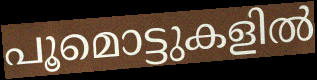
പൂമൊട്ടുകളിൽ